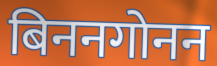
बिननगोनन